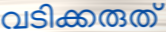
വടിക്കരുത്